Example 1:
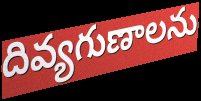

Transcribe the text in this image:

దివ్యగుణాలను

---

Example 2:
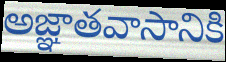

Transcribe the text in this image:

అజ్ఞాతవాసానికి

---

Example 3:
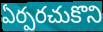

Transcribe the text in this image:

ఏర్పరచుకొని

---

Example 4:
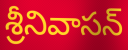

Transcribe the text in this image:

శ్రీనివాసన్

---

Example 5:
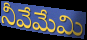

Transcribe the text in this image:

నీవేమేమి